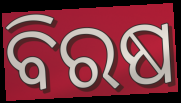
ବିରଷ